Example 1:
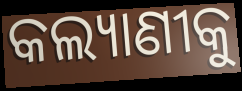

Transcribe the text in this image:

କଲ୍ୟାଣୀକୁ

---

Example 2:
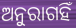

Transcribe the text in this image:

ଅନୁରାଗହିଁ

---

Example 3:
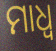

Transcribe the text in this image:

ମାଧ୍ଵ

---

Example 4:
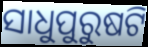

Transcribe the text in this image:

ସାଧୁପୁରୁଷଟି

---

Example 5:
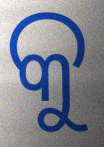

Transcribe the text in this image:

କୁ